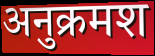
अनुक्रमश